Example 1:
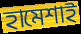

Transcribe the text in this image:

হামেশাই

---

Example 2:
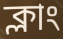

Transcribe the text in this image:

ক্লাং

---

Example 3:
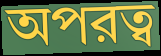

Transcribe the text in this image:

অপরত্ব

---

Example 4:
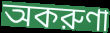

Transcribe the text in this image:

অকরুণা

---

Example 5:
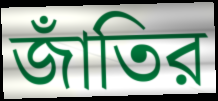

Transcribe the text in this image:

জাঁতির